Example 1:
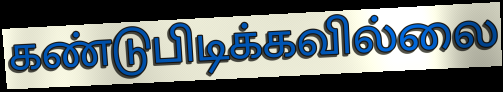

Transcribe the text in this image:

கண்டுபிடிக்கவில்லை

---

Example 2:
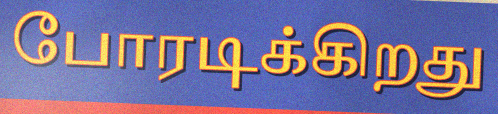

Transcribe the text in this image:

போரடிக்கிறது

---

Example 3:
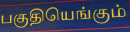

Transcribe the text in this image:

பகுதியெங்கும்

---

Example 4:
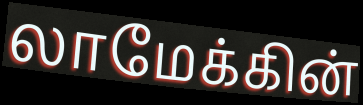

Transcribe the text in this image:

லாமேக்கின்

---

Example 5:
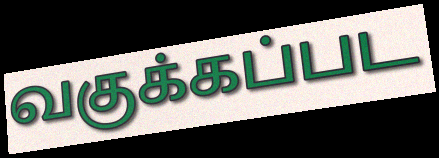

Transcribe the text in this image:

வகுக்கப்பட